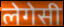
लेगेसी